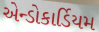
એન્ડોકાર્ડિયમ